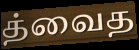
த்வைத